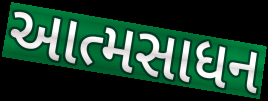
આત્મસાધન